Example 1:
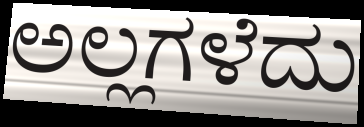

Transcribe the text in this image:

ಅಲ್ಲಗಳೆದು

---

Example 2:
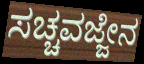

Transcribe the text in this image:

ಸಚ್ಚವಜ್ಜೇನ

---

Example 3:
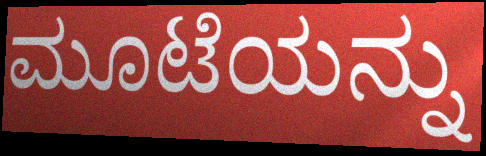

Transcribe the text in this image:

ಮೂಟೆಯನ್ನು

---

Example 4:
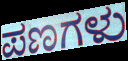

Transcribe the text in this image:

ಪಣಗಳು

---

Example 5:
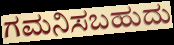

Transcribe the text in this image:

ಗಮನಿಸಬಹುದು